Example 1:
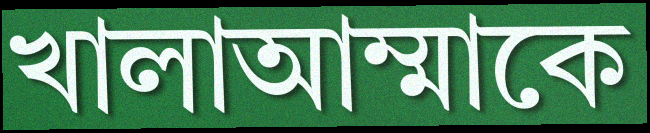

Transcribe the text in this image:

খালাআম্মাকে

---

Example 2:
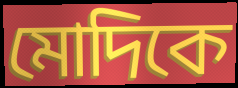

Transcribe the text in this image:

মোদিকে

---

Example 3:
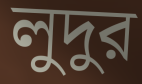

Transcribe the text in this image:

লুদুর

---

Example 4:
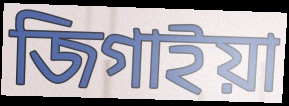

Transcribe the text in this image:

জিগাইয়া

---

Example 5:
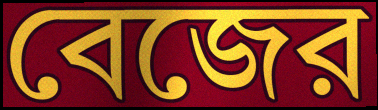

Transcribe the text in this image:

বেজের